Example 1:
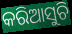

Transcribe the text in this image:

କରିଆସୁଚି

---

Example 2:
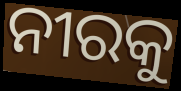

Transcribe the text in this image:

ନୀରକୁ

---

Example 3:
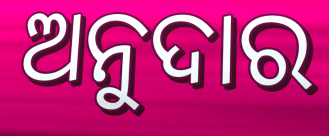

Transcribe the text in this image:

ଅନୁଦାର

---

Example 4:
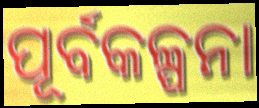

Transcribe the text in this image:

ପୂର୍ବକଳ୍ପନା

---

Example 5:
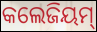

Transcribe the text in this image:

କଲେଜିୟମ୍